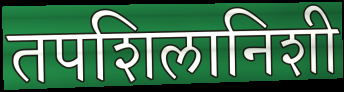
तपशिलानिशी